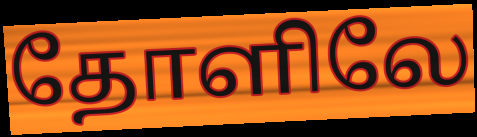
தோளிலே